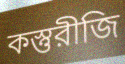
কস্তুরীজি